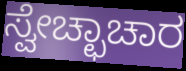
ಸ್ವೇಚ್ಛಾಚಾರ